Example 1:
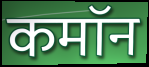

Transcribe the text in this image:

कमॉन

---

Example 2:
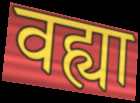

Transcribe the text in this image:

वह्या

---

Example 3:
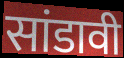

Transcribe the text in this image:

सांडावी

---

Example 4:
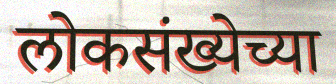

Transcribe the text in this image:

लोकसंख्येच्या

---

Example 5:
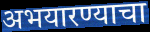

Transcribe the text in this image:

अभयारण्याचा